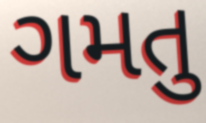
ગમતુ